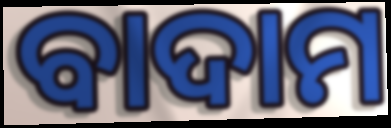
ବାଦାମ